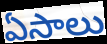
ఏసాలు